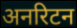
अनरिटन